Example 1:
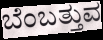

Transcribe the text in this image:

ಬೆಂಬತ್ತುವ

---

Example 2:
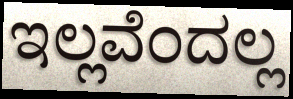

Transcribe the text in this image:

ಇಲ್ಲವೆಂದಲ್ಲ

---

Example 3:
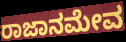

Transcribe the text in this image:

ರಾಜಾನಮೇವ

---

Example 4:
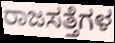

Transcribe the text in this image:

ರಾಜಸತ್ತೆಗಳ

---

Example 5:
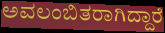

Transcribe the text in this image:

ಅವಲಂಬಿತರಾಗಿದ್ದಾರೆ